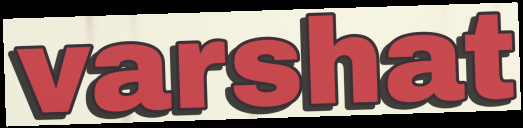
varshat